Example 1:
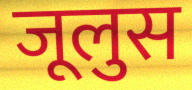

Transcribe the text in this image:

जूलुस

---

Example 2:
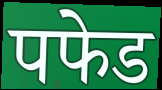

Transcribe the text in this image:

पफेड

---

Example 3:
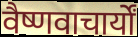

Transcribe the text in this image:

वैष्णवाचार्यों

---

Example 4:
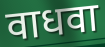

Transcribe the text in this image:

वाधवा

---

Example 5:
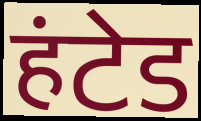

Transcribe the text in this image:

हंटेड